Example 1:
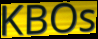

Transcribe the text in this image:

KBOs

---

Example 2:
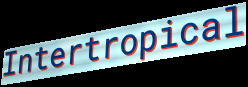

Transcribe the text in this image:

Intertropical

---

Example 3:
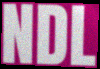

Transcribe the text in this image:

NDL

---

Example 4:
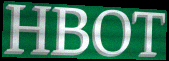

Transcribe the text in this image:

HBOT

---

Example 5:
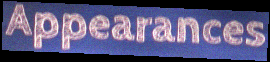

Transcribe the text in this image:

Appearances